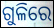
ଗୁଳିରେ